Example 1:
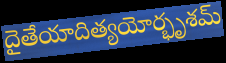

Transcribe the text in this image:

దైతేయాదిత్యయోర్భృశమ్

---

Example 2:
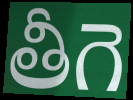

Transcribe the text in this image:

తీగె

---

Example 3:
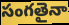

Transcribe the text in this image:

సంగతైనా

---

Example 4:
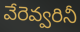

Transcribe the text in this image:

వేరెవ్వరినీ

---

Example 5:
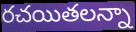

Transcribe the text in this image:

రచయితలన్నా